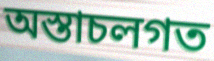
অস্তাচলগত